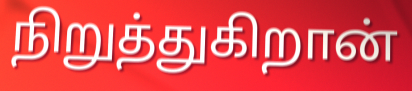
நிறுத்துகிறான்